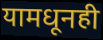
यामधूनही